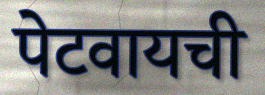
पेटवायची